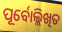
ପୂର୍ବୋଲ୍ଲିଖିତ